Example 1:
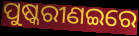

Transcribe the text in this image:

ପୁଷ୍କରୀଣଇରେ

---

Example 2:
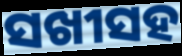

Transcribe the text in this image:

ସଖୀସହ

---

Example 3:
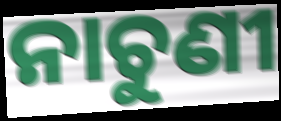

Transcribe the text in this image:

ନାଚୁଣୀ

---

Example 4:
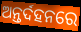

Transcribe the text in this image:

ଅନ୍ତର୍ଦହନରେ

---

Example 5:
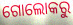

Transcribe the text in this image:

ଗୋଲୋକରୁ